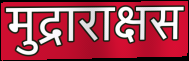
मुद्राराक्षस